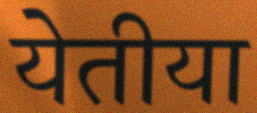
येतीया